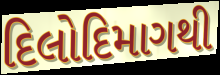
દિલોદિમાગથી